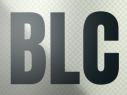
BLC